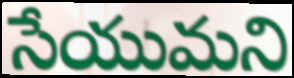
సేయుమని